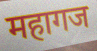
महागज